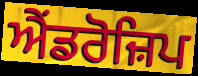
ਐਂਡਰੋਜ਼ਿਪ